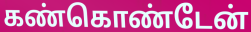
கண்கொண்டேன்